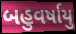
બહુવર્ષાયુ